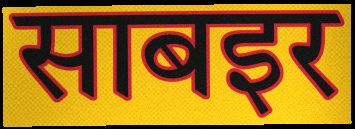
साबइर